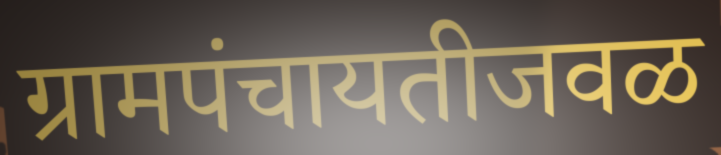
ग्रामपंचायतीजवळ